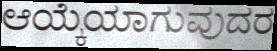
ಆಯ್ಕೆಯಾಗುವುದರ